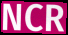
NCR